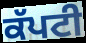
ਕੱਪਟੀ